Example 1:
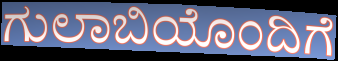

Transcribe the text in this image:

ಗುಲಾಬಿಯೊಂದಿಗೆ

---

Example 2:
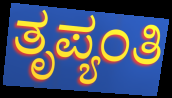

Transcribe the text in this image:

ತೃಪ್ಯಂತಿ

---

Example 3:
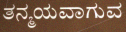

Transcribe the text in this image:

ತನ್ಮಯವಾಗುವ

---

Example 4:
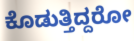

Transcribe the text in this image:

ಕೊಡುತ್ತಿದ್ದರೋ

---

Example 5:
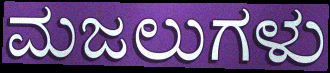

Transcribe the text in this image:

ಮಜಲುಗಳು